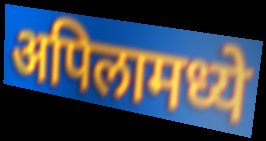
अपिलामध्ये